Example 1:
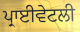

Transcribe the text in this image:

ਪ੍ਰਾਈਵੇਟਲੀ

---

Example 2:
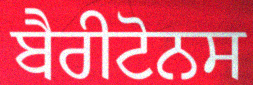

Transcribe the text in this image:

ਬੈਰੀਟੋਨਸ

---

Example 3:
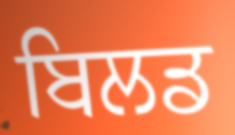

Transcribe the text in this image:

ਬਿਲਡ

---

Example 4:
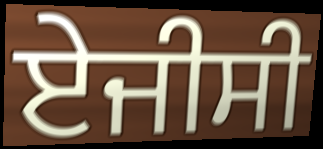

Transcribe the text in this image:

ਏਜੀਸੀ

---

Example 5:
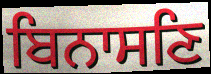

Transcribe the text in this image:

ਬਿਨਾਸਣਿ